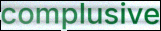
complusive